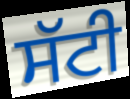
ਸੱਟੀ